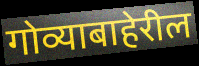
गोव्याबाहेरील